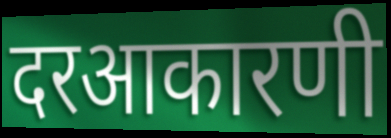
दरआकारणी